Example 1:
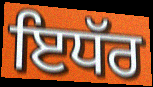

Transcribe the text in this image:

ਇਧੱਰ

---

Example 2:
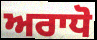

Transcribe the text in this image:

ਅਰਾਧੋ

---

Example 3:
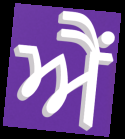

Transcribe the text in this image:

ਐਂ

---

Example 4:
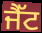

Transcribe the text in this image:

ਜੈੱਟ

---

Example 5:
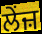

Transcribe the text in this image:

ਲੇਂਜ਼